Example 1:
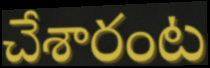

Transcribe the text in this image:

చేశారంట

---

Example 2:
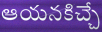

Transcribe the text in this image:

ఆయనకిచ్చే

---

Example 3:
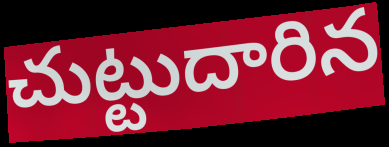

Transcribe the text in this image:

చుట్టుదారిన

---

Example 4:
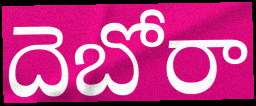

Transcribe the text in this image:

దెబోరా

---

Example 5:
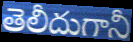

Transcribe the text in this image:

తెలీదుగానీ